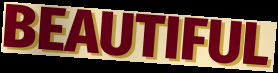
BEAUTIFUL